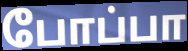
போப்பா